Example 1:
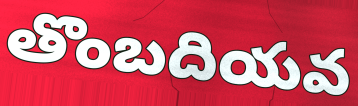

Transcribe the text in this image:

తొంబదియవ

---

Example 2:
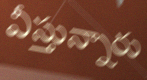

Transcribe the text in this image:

వీస్తున్నారు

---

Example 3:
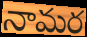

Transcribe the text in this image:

నామర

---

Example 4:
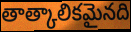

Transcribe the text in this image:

తాత్కాలికమైనది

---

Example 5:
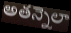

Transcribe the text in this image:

అతన్నెలా